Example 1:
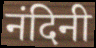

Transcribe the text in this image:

नंदिनी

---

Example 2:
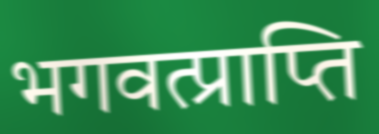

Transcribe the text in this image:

भगवत्प्राप्ति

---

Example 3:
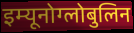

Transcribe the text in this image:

इम्यूनोग्लोबुलिन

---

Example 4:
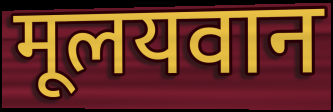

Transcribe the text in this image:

मूलयवान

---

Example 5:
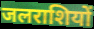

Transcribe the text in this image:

जलराशियों